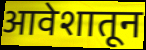
आवेशातून